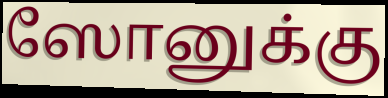
ஸோனுக்கு